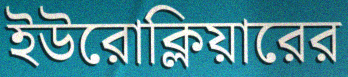
ইউরোক্লিয়ারের